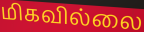
மிகவில்லை